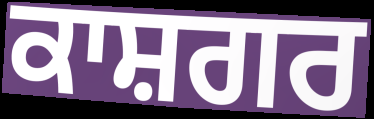
ਕਾਸ਼ਗਰ